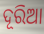
ଦୂରିଆ